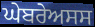
ਘੇਬਰੇਅਸਸ